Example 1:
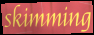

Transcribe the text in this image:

skimming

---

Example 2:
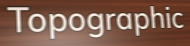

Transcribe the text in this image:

Topographic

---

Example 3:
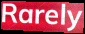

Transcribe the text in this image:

Rarely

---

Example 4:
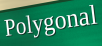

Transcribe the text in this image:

Polygonal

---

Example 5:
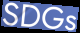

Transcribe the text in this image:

SDGs